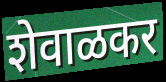
शेवाळकर